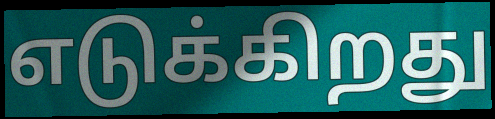
எடுக்கிறது